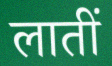
लातीं